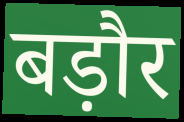
बड़ौर